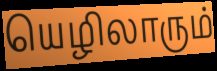
யெழிலாரும்